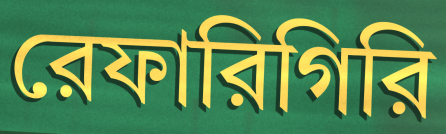
রেফারিগিরি